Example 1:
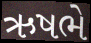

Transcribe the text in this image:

ઋષભે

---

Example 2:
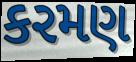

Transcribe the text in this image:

કરમણ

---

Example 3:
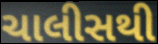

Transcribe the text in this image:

ચાલીસથી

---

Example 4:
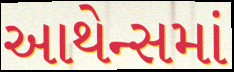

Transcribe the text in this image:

આથેન્સમાં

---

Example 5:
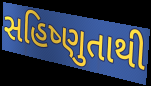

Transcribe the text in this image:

સહિષ્ણુતાથી